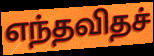
எந்தவிதச்